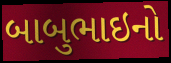
બાબુભાઇનો